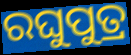
ରଘୁପୁତ୍ର